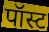
पॉस्ट